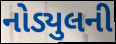
નોડ્યુલની